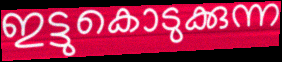
ഇട്ടുകൊടുക്കുന്ന